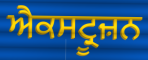
ਐਕਸਟ੍ਰੂਜ਼ਨ